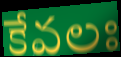
కేవలః